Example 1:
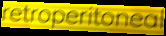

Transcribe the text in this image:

retroperitoneal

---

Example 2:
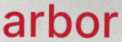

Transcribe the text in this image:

arbor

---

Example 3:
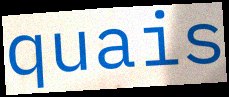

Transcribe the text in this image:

quais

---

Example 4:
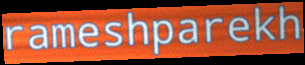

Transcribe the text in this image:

rameshparekh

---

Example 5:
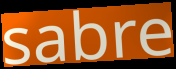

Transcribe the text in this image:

sabre